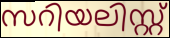
സറിയലിസ്റ്റ്